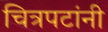
चित्रपटांनी